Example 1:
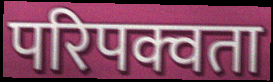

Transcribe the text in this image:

परिपक्‍वता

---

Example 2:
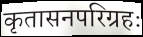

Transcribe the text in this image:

कृतासनपरिग्रहः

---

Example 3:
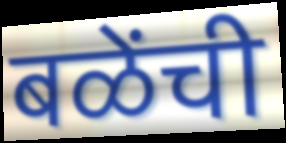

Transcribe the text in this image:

बळेंची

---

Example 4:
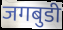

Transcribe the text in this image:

जगबुडी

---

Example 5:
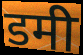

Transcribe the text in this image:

डमी